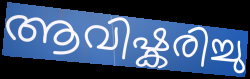
ആവിഷ്കരിച്ചു